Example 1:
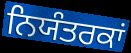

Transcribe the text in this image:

ਨਿਯੰਤਰਕਾਂ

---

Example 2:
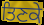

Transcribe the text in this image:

ਤਿਣਕੇ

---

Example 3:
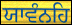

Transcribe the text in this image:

ਯਾਵੰਨਹਿ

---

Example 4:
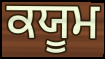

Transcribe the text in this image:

ਕਯੂਮ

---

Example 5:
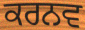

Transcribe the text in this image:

ਕਰਨਵ